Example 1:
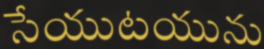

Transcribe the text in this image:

సేయుటయును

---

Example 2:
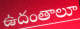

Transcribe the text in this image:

ఉదంతాలూ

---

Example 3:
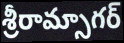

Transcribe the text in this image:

శ్రీరామ్సాగర్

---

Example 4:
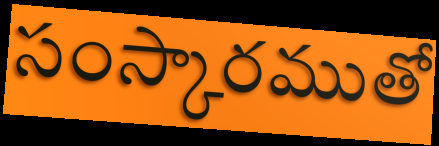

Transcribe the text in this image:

సంస్కారముతో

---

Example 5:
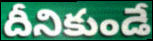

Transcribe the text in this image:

దీనికుండే